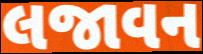
લજાવન